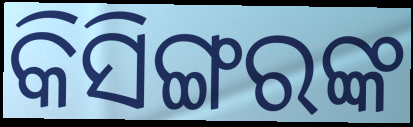
କିସିଙ୍ଗରଙ୍କ